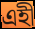
এহী